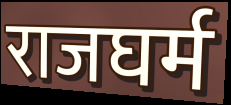
राजघर्म